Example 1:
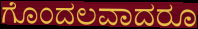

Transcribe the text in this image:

ಗೊಂದಲವಾದರೂ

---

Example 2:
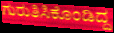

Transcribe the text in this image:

ಗುರುತಿಸಿಕೊಂಡಿದ್ದ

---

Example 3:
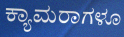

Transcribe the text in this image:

ಕ್ಯಾಮರಾಗಳೂ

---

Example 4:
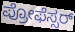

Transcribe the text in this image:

ಪ್ರೋಫೆಸ್ಸರ್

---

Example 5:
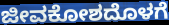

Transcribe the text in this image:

ಜೀವಕೋಶದೊಳಗೆ